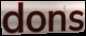
dons